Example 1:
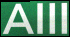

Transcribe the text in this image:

AIII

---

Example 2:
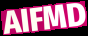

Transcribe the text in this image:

AIFMD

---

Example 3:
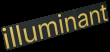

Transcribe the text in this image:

illuminant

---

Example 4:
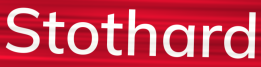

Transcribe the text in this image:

Stothard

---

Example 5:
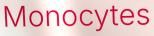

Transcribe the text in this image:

Monocytes